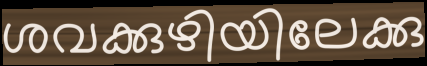
ശവക്കുഴിയിലേക്കു